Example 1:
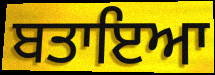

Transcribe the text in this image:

ਬਤਾਇਆ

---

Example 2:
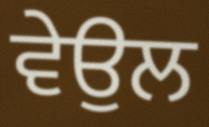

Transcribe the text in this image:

ਵੇਉਲ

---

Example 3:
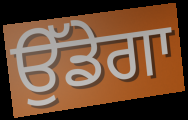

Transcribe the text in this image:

ਉੱਡੇਗਾ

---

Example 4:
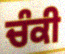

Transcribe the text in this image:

ਚੰਕੀ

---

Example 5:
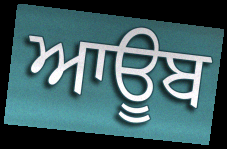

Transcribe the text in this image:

ਆਊਬ